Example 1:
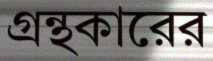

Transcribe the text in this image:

গ্রন্থকারের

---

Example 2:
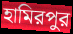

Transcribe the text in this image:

হামিরপুর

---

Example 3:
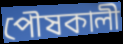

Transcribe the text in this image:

পৌষকালী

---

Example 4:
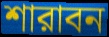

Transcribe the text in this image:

শারাবন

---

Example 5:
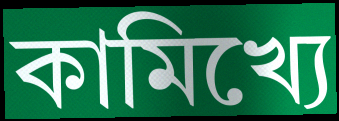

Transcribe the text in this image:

কামিখ্যে